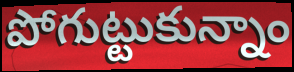
పోగుట్టుకున్నాం